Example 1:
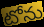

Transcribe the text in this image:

టోను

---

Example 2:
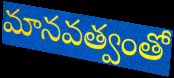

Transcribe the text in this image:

మానవత్వంతో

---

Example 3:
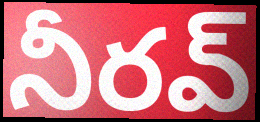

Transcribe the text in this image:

నీరవ్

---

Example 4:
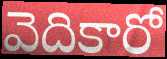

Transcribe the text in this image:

వెదికారో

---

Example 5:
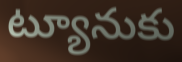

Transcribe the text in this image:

ట్యూనుకు